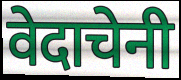
वेदाचेनी